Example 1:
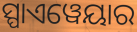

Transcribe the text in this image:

ସ୍ପାଏୱେୟାର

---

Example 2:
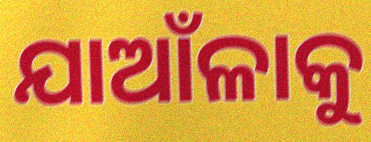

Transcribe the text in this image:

ଯାଆଁଳାକୁ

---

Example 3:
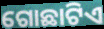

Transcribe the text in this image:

ଗୋଛାଟିଏ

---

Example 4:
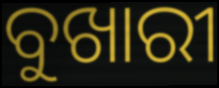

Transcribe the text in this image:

ବୁଖାରୀ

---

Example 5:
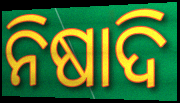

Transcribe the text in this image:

ନିଷାଦି